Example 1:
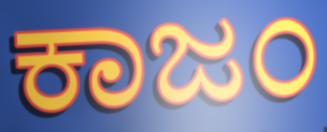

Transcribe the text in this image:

ಕಾಜಂ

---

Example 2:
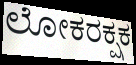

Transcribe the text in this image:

ಲೋಕರಕ್ಷಕ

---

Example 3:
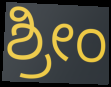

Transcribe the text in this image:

ಶ್ರೀಂ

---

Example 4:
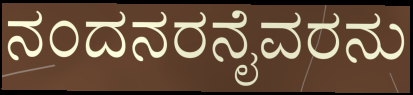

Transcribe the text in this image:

ನಂದನರನೈವರನು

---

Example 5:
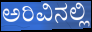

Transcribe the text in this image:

ಅರಿವಿನಲ್ಲಿ